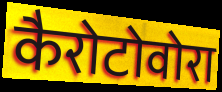
कैरोटोवोरा